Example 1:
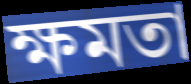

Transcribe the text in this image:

ক্ষমতা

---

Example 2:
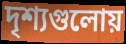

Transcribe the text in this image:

দৃশ্যগুলোয়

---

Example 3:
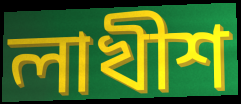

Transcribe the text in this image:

লাখীশ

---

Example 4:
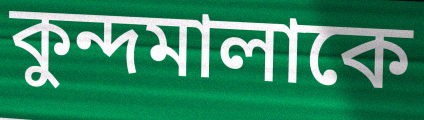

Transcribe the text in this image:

কুন্দমালাকে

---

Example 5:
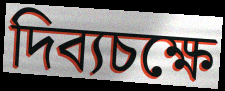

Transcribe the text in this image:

দিব্যচক্ষে